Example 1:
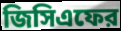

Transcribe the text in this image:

জিসিএফের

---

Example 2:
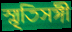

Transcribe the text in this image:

স্মৃতিসঙ্গী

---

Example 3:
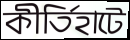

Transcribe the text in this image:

কীর্তিহাটে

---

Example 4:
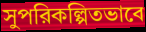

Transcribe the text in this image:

সুপরিকল্পিতভাবে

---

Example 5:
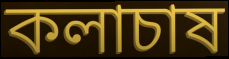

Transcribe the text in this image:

কলাচাষ